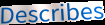
Describes